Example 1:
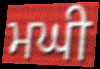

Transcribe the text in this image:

ਮਘੀ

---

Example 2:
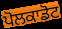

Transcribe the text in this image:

ਪੋਲਕਾਡੋਟ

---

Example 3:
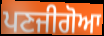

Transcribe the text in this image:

ਪਣਜੀਗੋਆ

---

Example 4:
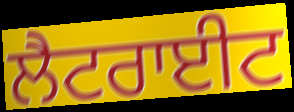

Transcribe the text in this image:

ਲੈਟਰਾਈਟ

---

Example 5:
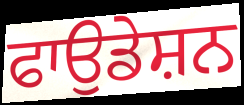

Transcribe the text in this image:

ਫਾਉਡੇਸ਼ਨ